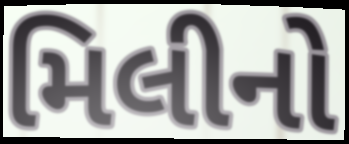
મિલીનો